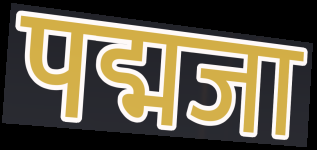
पद्मजा